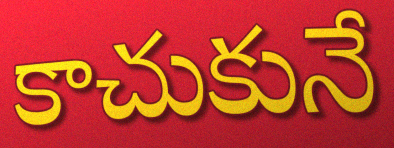
కాచుకునే